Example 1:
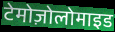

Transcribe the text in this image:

टेमोज़ोलोमाइड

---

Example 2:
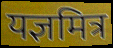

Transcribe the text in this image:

यज्ञमित्र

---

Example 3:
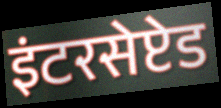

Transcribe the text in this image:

इंटरसेप्टेड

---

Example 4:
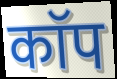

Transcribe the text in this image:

कॉप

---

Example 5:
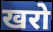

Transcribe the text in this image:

खरो